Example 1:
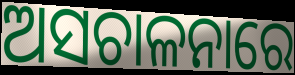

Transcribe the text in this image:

ଅସଚାଳନାରେ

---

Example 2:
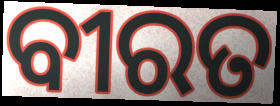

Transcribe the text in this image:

ବୀରତ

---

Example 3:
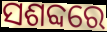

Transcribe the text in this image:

ସଶବ୍ଦରେ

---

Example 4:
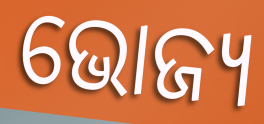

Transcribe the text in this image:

ଭୋଜ୍ୟ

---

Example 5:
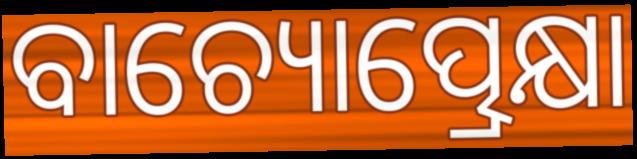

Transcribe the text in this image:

ବାଚ୍ୟୋତ୍ପ୍ରେକ୍ଷା